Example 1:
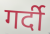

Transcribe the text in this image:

गर्दी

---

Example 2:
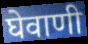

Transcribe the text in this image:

घेवाणी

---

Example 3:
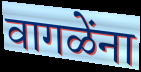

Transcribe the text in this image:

वागळेंना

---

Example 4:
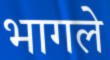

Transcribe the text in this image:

भागले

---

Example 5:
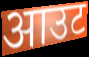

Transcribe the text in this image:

आउट